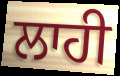
ਲਾਹੀ